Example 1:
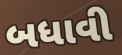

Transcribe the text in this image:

બધાવી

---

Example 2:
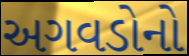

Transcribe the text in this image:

અગવડોનો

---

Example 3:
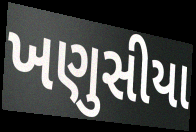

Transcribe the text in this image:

ખણુસીયા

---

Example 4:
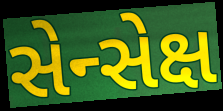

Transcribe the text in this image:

સેન્સેક્ષ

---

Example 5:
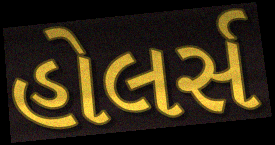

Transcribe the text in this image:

હોલર્સ